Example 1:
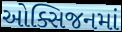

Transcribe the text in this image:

ઓક્સિજનમાં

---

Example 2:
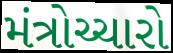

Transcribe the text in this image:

મંત્રોચ્ચારો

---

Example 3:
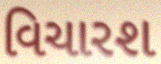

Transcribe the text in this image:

વિચારશ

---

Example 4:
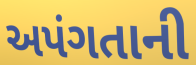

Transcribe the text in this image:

અપંગતાની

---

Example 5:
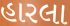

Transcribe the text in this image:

હારલા